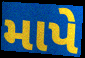
માપે